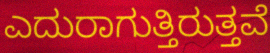
ಎದುರಾಗುತ್ತಿರುತ್ತವೆ